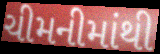
ચીમનીમાંથી